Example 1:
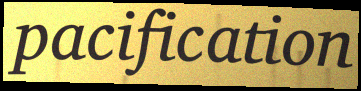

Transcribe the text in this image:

pacification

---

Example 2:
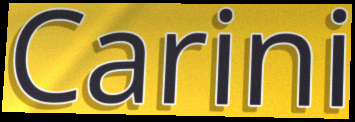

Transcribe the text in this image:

Carini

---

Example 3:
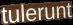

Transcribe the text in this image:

tulerunt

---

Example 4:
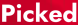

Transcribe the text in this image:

Picked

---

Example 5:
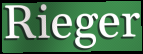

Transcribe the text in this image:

Rieger